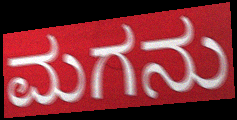
ಮಗನು